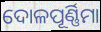
ଦୋଳପୂର୍ଣ୍ଣିମା